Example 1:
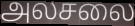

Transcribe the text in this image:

அலசலை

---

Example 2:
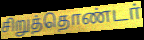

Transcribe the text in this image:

சிறுத்தொண்டர்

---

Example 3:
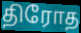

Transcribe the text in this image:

திரோத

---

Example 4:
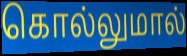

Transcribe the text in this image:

கொல்லுமால்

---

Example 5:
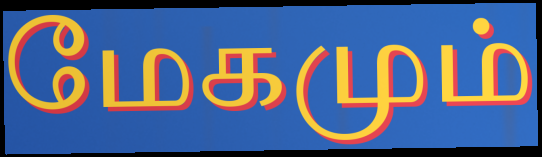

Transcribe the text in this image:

மேகமும்